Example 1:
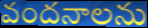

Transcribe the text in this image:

వందనాలను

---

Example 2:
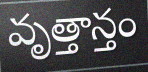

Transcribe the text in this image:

వృత్తాన్తం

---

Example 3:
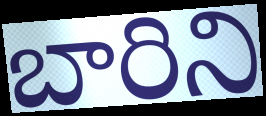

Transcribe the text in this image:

బారిని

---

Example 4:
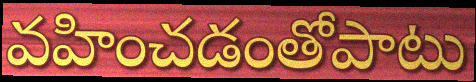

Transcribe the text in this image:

వహించడంతోపాటు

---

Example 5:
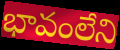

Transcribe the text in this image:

భావంలేని